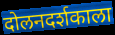
दोलनदर्शकाला